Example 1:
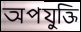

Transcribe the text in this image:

অপযুক্তি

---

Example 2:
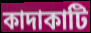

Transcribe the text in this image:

কাদাকাটি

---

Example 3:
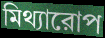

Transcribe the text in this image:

মিথ্যারোপ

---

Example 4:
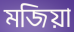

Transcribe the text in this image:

মজিয়া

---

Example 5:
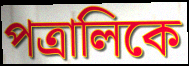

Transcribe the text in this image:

পত্রালিকে